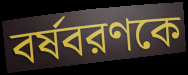
বর্ষবরণকে